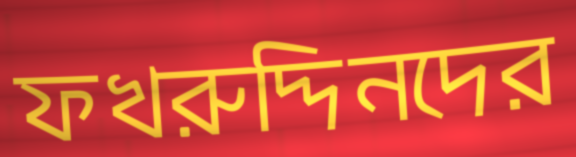
ফখরুদ্দিনদের